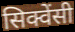
सिक्वेंसी